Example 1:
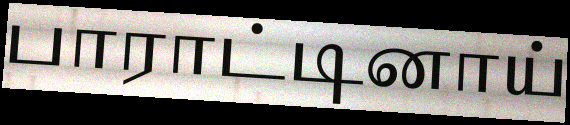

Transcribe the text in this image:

பாராட்டினாய்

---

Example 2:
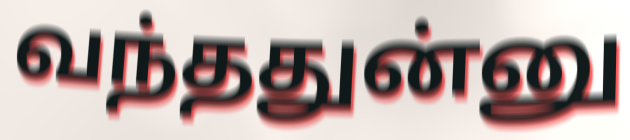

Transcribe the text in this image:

வந்ததுன்னு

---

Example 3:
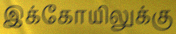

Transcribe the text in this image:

இக்கோயிலுக்கு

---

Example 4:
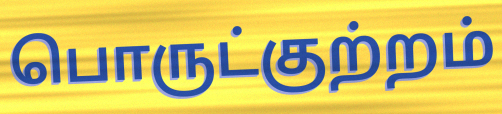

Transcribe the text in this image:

பொருட்குற்றம்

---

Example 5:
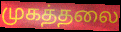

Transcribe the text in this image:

முகத்தலை